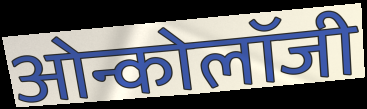
ओन्कोलॉजी